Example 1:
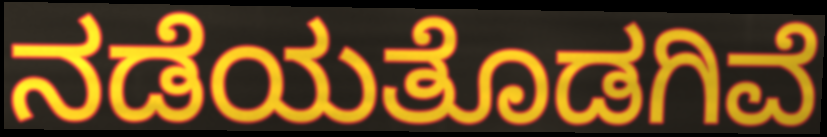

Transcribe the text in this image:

ನಡೆಯತೊಡಗಿವೆ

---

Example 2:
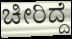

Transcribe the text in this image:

ಚೀರಿದ್ದೆ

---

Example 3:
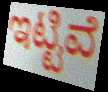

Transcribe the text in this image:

ಇಟ್ಟಿವೆ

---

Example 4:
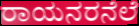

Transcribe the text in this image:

ರಾಯನರನೆಲೆ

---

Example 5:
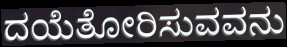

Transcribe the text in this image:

ದಯೆತೋರಿಸುವವನು